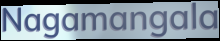
Nagamangala